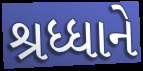
શ્રધ્ધાને